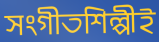
সংগীতশিল্পীই